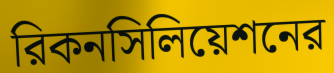
রিকনসিলিয়েশনের